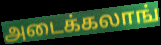
அடைக்கலாங்